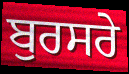
ਬੁਰਸਰੇ